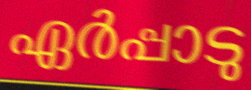
ഏർപ്പാടു